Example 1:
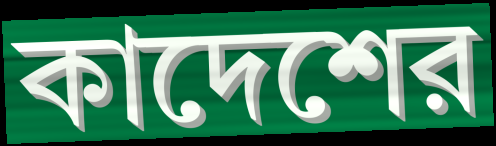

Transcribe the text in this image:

কাদেশের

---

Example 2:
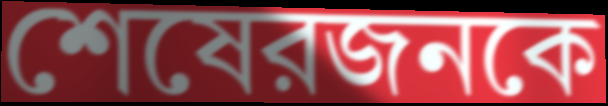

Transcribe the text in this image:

শেষেরজনকে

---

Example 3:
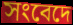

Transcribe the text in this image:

সংবেদে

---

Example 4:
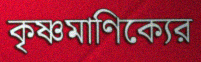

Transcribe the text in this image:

কৃষ্ণমাণিক্যের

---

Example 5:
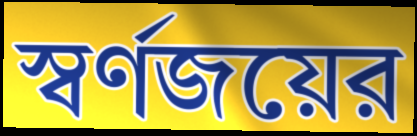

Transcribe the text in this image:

স্বর্ণজয়ের